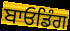
ਬਾਓਡਿੰਗ